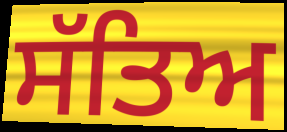
ਸੱਤਿਅ